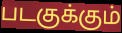
படகுக்கும்